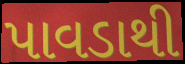
પાવડાથી